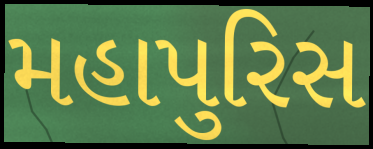
મહાપુરિસ